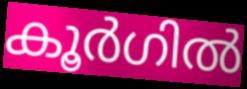
കൂർഗിൽ